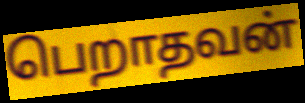
பெறாதவன்